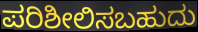
ಪರಿಶೀಲಿಸಬಹುದು